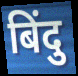
बिंदु